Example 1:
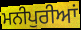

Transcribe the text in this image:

ਮਨੀਪੁਰੀਆਂ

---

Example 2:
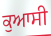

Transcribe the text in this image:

ਕੁਆਸੀ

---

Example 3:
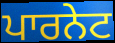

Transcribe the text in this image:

ਪਾਰਨੇਟ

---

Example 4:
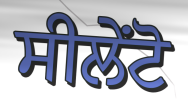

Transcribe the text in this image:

ਸੀਲੇਂਟੋ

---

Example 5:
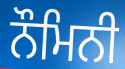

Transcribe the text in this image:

ਨੌਮਿਨੀ